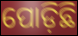
ପୋଡ଼ିଛି